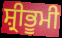
ਸ਼੍ਰੀਭੂਮੀ